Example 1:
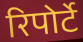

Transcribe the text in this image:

रिपोर्टे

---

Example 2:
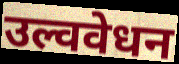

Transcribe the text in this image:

उल्ववेधन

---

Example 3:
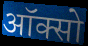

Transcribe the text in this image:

ऑक्सो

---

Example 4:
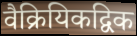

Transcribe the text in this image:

वैक्रियिकद्विक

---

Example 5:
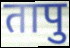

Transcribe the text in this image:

तापु